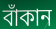
বাঁকান